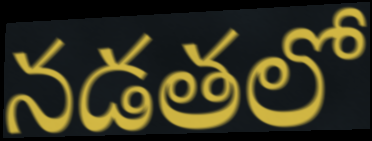
నడతలో